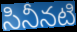
సినీనటి